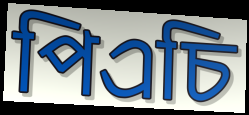
পিএচি